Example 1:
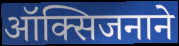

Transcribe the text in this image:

ऑक्सिजनाने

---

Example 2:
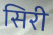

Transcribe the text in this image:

सिरी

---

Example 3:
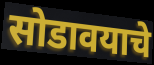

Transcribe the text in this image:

सोडावयाचे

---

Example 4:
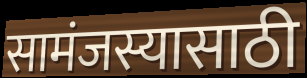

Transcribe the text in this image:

सामंजस्यासाठी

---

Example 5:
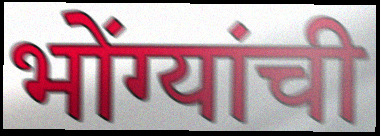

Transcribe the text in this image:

भोंग्यांची